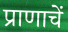
प्राणाचें